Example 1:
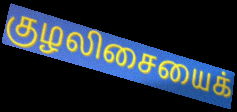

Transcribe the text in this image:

குழலிசையைக்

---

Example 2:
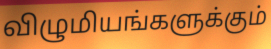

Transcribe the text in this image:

விழுமியங்களுக்கும்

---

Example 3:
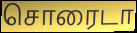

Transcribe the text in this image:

சொரைடா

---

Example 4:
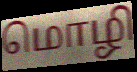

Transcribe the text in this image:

மொழி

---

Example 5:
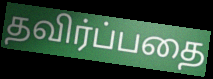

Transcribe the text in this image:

தவிர்ப்பதை